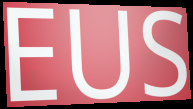
EUS